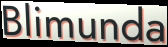
Blimunda